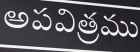
అపవిత్రము